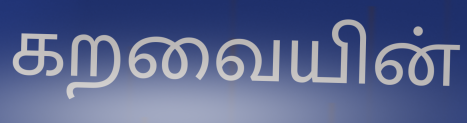
கறவையின்